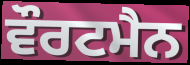
ਵੌਰਟਮੈਨ